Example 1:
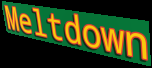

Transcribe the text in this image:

Meltdown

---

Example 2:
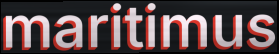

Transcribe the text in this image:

maritimus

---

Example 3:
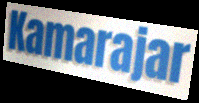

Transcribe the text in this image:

Kamarajar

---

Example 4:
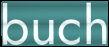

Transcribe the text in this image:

buch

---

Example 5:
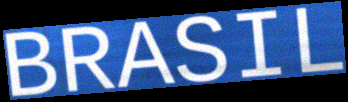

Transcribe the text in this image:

BRASIL